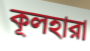
কূলহারা